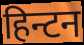
हिन्टन